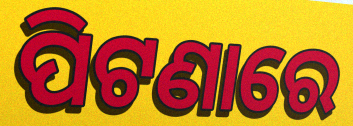
ପିଟଣାରେ